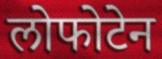
लोफोटेन